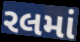
રલમાં